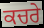
ਕਚਰੇ